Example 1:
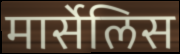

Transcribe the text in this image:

मार्सेलिस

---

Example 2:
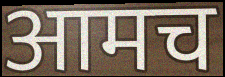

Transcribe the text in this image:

आमच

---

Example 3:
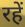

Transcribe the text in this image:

रहें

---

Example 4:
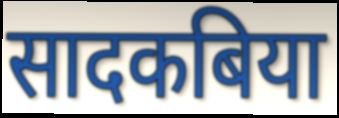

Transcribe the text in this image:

सादकबिया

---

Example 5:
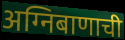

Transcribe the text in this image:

अग्निबाणाची